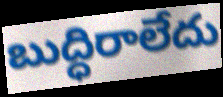
బుద్ధిరాలేదు